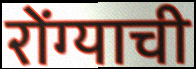
रोंग्याची